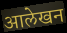
आलेखन